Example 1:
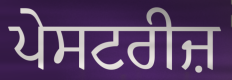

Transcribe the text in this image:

ਪੇਸਟਰੀਜ਼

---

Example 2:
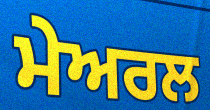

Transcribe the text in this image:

ਮੇਅਰਲ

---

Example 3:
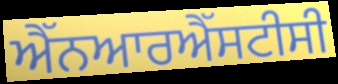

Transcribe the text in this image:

ਐੱਨਆਰਐੱਸਟੀਸੀ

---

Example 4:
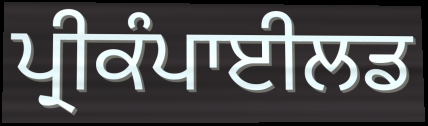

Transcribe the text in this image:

ਪ੍ਰੀਕੰਪਾਈਲਡ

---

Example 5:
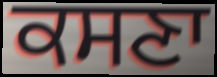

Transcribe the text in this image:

ਕਸਣਾ